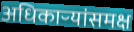
अधिकाऱ्यांसमक्ष